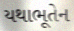
યથાભૂતેન